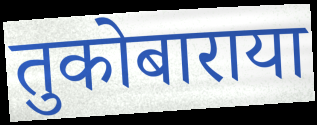
तुकोबाराया